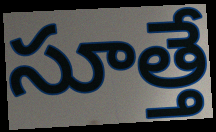
సూత్తే